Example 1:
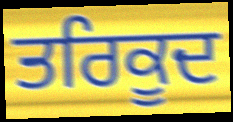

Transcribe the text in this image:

ਤਰਿਕੂਦ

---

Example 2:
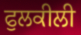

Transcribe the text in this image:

ਫੁਲਕੀਲੀ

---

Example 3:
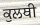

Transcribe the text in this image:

ਕੁਲਥੀ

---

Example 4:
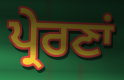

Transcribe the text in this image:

ਪ੍ਰੇਰਣਾਂ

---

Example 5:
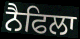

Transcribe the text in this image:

ਨੈਫਿਲਾ